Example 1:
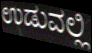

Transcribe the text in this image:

ಉಡುವಲ್ಲಿ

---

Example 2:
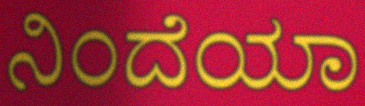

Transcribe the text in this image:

ನಿಂದೆಯಾ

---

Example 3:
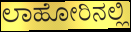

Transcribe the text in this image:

ಲಾಹೋರಿನಲ್ಲಿ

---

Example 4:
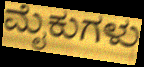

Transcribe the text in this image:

ಮೈಕುಗಳು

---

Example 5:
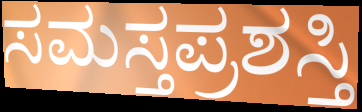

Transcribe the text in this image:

ಸಮಸ್ತಪ್ರಶಸ್ತಿ